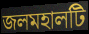
জলমহালটি